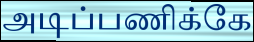
அடிப்பணிக்கே